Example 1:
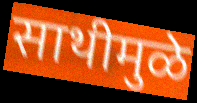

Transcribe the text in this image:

साथीमुळे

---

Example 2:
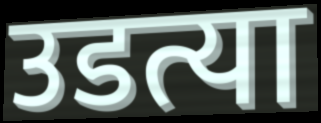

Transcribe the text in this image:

उडत्या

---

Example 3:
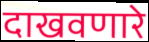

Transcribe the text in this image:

दाखवणारे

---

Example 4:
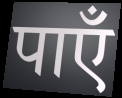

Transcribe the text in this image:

पाएँ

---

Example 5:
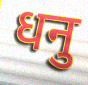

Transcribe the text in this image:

धनु